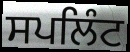
ਸਪਲਿੰਟ